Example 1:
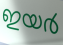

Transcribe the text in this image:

ഇയർ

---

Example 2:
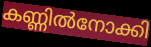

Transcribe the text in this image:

കണ്ണിൽനോക്കി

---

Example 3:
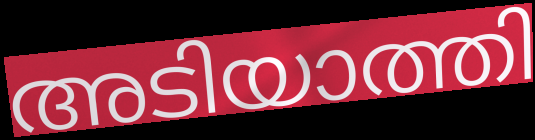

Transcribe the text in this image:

അടിയാത്തി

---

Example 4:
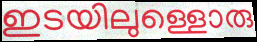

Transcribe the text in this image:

ഇടയിലുള്ളൊരു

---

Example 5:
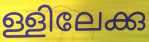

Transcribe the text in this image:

ള്ളിലേക്കു